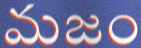
మజం